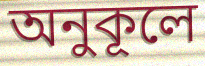
অনুকূলে